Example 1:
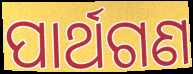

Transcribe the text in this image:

ପାର୍ଥଗଣ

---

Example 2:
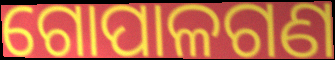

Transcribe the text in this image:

ଗୋପାଳଗଣ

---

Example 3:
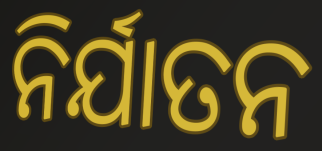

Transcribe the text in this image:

ନିର୍ଯାତନ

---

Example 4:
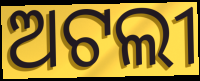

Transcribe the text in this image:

ଅଟଲୀ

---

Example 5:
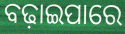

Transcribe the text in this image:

ବଢ଼ାଇପାରେ